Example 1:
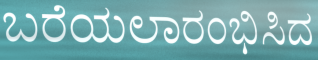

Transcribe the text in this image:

ಬರೆಯಲಾರಂಭಿಸಿದ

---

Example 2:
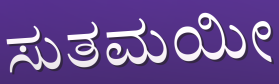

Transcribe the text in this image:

ಸುತಮಯೀ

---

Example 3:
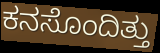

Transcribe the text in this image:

ಕನಸೊಂದಿತ್ತು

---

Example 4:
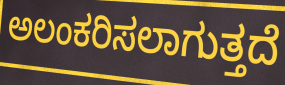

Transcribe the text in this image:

ಅಲಂಕರಿಸಲಾಗುತ್ತದೆ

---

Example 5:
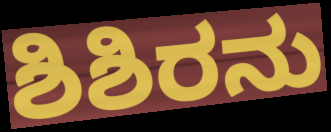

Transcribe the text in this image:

ಶಿಶಿರನು